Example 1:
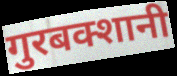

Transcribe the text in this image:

गुरबक्शानी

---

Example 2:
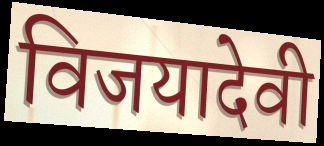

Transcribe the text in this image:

विजयादेवी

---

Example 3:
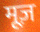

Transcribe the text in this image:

मूज़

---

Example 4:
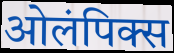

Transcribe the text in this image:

ओलंपिक्‍स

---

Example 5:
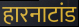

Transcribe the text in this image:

हारनाटांड